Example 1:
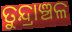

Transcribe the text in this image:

ତୁନ୍ଦ୍ରାଞ୍ଚଳ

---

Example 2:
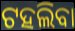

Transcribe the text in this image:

ଟହଲିବା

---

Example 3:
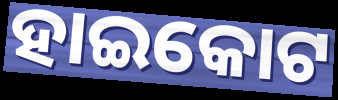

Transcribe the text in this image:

ହାଇକୋଟ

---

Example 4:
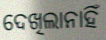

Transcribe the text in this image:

ଦେଖିଲାନାହିଁ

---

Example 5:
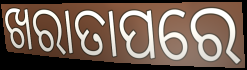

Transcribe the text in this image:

ଖରାତାପରେ